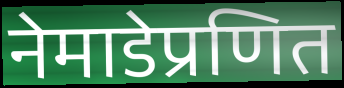
नेमाडेप्रणित